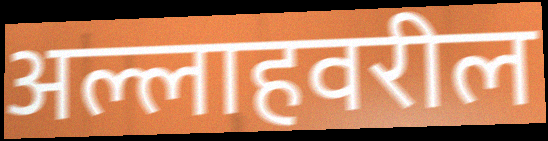
अल्लाहवरील